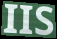
IIS